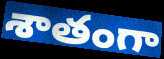
శాతంగా